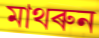
মাথৰুন